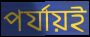
পর্যায়ই